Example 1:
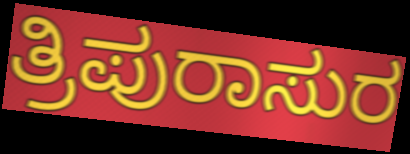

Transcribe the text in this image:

ತ್ರಿಪುರಾಸುರ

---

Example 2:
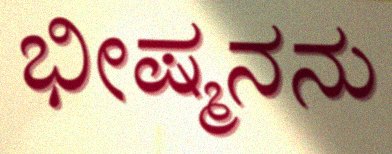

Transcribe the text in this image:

ಭೀಷ್ಮನನು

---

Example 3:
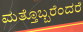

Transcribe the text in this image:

ಮತ್ತೊಬ್ಬರೆಂದರೆ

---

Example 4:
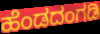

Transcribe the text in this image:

ಹೆಂಡದಂಗಡಿ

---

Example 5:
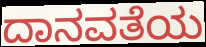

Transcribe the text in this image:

ದಾನವತೆಯ